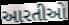
આરતીઓ